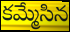
కమ్మేసిన